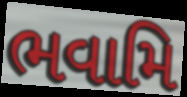
ભવામિ